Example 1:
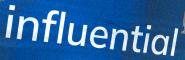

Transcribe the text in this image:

influential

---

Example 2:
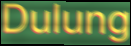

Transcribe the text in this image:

Dulung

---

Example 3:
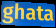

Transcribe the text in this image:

ghata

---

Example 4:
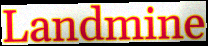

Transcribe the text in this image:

Landmine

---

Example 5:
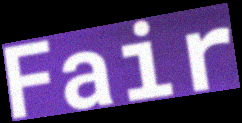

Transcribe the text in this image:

Fair